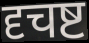
दृचष्ट